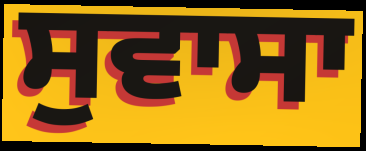
ਸੁਵਾਸਾ